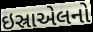
ઇસ્રાએલનો